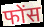
फोंस